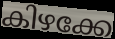
കിഴക്കേ